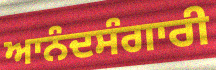
ਆਨੰਦਸੰਗਾਰੀ